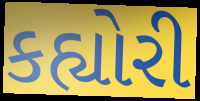
કહ્યોરી